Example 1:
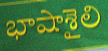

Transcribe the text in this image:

భాషాశైలి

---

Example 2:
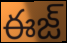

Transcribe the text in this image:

ఈజ్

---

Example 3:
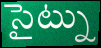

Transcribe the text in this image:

సైట్ను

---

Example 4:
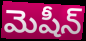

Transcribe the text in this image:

మెషీన్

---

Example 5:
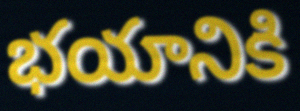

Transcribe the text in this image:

భయానికి